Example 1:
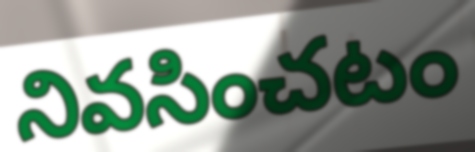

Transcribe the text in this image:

నివసించటం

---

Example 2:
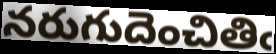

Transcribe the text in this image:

నరుగుదెంచితిఁ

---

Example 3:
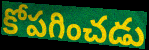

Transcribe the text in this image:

కోపగించడు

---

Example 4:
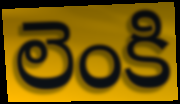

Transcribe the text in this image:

లెంకి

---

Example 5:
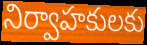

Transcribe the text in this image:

నిర్వాహకులకు